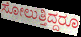
ಸೋಲುತ್ತಿದ್ದರೂ